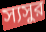
স্যসুর